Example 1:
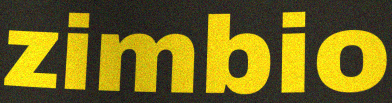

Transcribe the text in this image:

zimbio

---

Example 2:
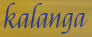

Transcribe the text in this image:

kalanga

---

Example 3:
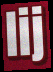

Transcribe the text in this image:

lij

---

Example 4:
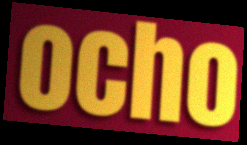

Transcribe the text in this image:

ocho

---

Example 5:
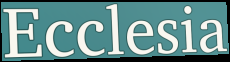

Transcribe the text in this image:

Ecclesia